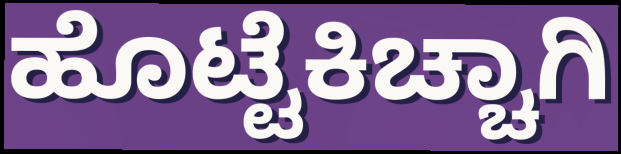
ಹೊಟ್ಟೆಕಿಚ್ಚಾಗಿ